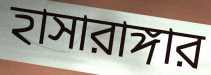
হাসারাঙ্গার